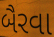
બૈરવા